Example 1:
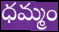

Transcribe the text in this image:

ధమ్మం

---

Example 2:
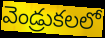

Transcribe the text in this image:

వెండ్రుకలలో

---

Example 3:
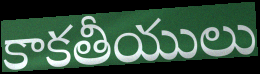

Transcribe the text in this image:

కాకతీయులు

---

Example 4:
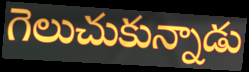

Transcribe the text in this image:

గెలుచుకున్నాడు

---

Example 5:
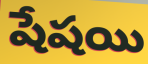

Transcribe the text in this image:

షేషయి